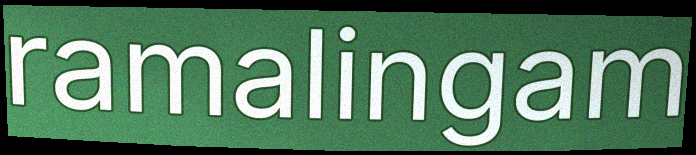
ramalingam